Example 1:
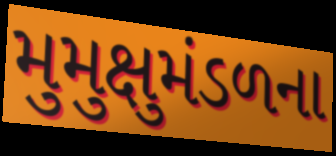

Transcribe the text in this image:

મુમુક્ષુમંડળના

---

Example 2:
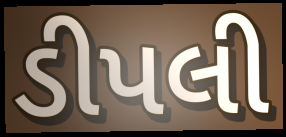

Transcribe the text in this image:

ડીપલી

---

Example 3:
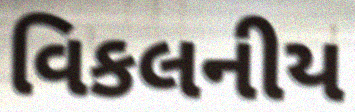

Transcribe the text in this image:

વિકલનીય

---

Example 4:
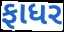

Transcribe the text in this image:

ફાધર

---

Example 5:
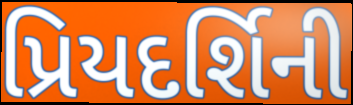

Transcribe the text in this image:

પ્રિયદર્શિની